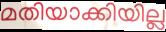
മതിയാക്കിയില്ല